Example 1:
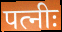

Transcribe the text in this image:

पत्नीः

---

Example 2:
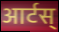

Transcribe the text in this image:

आर्टस्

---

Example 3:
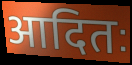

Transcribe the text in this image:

आदितः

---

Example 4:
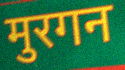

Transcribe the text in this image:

मुरगन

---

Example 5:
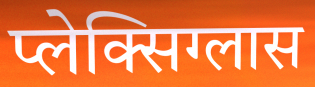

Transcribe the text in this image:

प्लेक्सिग्लास